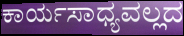
ಕಾರ್ಯಸಾಧ್ಯವಲ್ಲದ